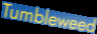
Tumbleweed